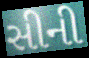
સીની